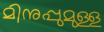
മിനുപ്പുമുള്ള